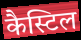
कैस्टिल